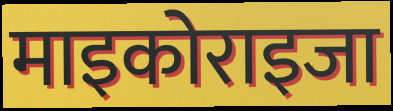
माइकोराइजा